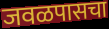
जवळपासचा